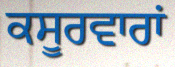
ਕਸੂਰਵਾਰਾਂ